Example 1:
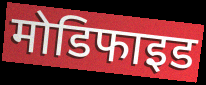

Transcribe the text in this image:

मोडिफाइड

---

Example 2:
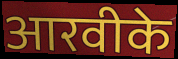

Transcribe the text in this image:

आरवीके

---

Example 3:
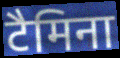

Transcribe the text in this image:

टैमिना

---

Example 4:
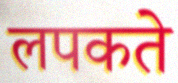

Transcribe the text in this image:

लपकते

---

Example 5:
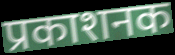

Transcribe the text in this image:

प्रकाशनक